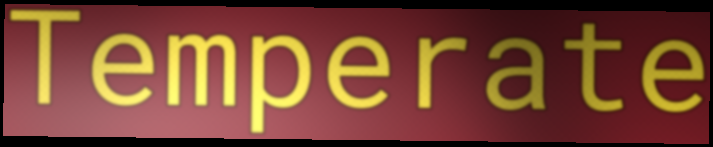
Temperate